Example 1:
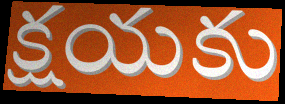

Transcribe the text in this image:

క్షయకు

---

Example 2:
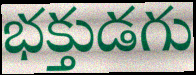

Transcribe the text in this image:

భక్తుడగు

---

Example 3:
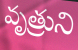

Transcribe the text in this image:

వృత్రుని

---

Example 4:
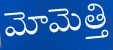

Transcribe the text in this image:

మోమెత్తి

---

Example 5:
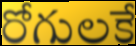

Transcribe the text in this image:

రోగులకే